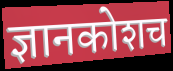
ज्ञानकोशच